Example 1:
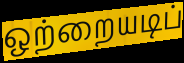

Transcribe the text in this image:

ஒற்றையடிப்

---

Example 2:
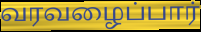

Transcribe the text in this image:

வரவழைப்பார்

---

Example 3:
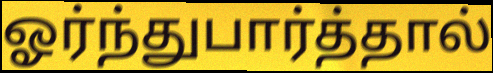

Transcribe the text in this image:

ஓர்ந்துபார்த்தால்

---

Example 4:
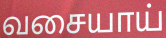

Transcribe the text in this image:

வசையாய்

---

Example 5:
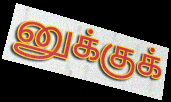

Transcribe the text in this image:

னுக்குக்